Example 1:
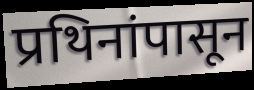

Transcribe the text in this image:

प्रथिनांपासून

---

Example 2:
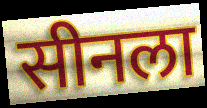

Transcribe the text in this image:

सीनला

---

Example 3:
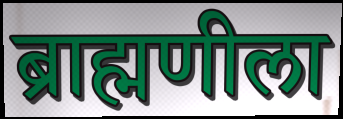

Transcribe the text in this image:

ब्राह्मणीला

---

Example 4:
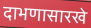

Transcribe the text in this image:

दाभणासारखे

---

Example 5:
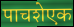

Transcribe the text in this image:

पाचशेएक